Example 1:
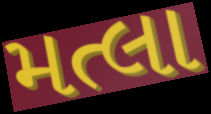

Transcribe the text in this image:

મત્લા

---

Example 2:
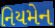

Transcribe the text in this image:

નિયમેન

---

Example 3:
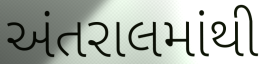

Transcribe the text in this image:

અંતરાલમાંથી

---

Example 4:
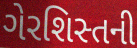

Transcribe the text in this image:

ગેરશિસ્તની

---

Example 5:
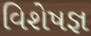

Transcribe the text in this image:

વિશેષજ્ઞ